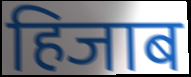
हिजाब